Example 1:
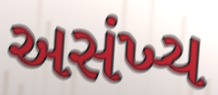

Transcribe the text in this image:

અસંખ્ય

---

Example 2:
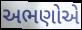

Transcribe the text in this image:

અભણોએ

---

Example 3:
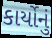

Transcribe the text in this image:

કાર્યોનું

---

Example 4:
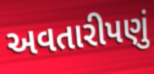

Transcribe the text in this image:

અવતારીપણું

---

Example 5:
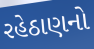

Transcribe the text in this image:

રહેઠાણનો